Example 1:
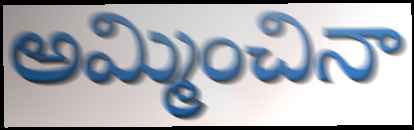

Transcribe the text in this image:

అమ్మించినా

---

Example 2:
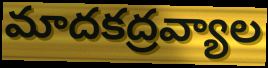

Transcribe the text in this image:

మాదకద్రవ్యాల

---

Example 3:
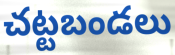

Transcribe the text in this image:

చట్టబండలు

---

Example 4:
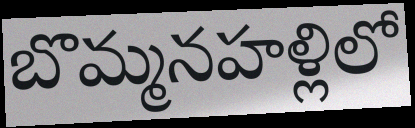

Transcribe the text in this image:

బొమ్మనహళ్లిలో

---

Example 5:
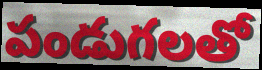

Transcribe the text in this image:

పండుగలతో